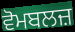
ਵੋਮਬਲਜ਼